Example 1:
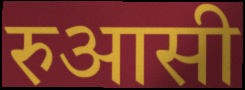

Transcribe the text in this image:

रुआसी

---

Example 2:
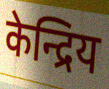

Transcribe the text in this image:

केन्द्रिय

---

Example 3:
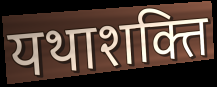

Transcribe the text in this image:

यथाशक्ति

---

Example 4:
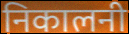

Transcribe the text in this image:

निकालनी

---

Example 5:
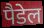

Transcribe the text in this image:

पैडेल